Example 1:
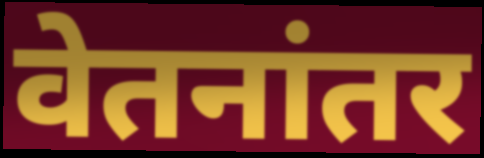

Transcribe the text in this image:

वेतनांतर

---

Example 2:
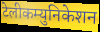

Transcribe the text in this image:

टेलीकम्युनिकेशन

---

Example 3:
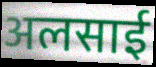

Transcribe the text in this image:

अलसाई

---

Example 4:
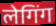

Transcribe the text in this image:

लेगिंग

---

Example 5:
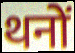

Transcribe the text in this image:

थनों